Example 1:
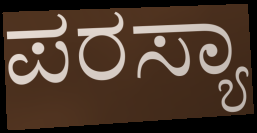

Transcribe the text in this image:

ಪರಸ್ಯಾ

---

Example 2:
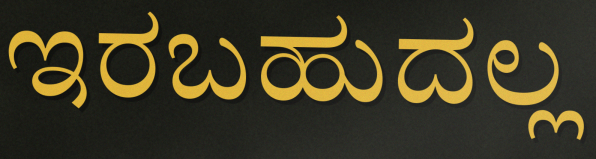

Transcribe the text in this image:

ಇರಬಹುದಲ್ಲ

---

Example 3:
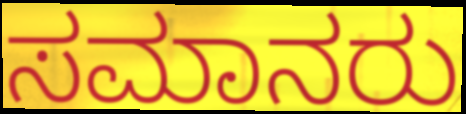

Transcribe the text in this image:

ಸಮಾನರು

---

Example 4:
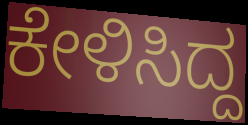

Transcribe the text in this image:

ಕೇಳಿಸಿದ್ದ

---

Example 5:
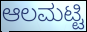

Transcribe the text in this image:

ಆಲಮಟ್ಟಿ